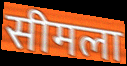
सीमला